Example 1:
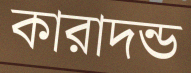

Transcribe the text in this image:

কারাদন্ড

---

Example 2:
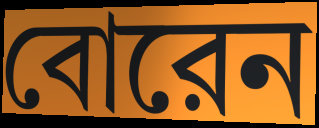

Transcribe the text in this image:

বোরেন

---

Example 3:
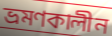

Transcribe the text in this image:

ভ্রমণকালীন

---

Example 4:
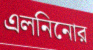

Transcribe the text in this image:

এলনিনোর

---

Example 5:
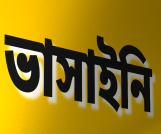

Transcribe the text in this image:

ভাসাইনি